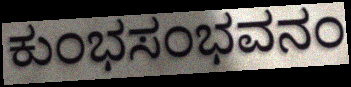
ಕುಂಭಸಂಭವನಂ